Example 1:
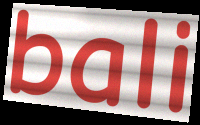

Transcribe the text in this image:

bali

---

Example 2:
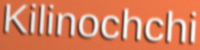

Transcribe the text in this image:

Kilinochchi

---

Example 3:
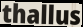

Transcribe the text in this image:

thallus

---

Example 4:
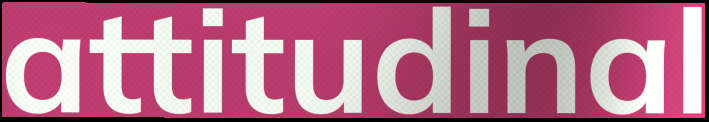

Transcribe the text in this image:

attitudinal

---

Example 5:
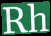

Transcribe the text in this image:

Rh